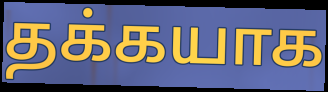
தக்கயாக